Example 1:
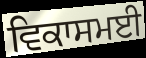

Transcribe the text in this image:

ਵਿਕਾਸਮਈ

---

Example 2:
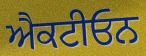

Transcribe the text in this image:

ਐਕਟੀਓਨ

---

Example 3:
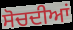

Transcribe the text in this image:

ਸੋਚਦੀਆਂ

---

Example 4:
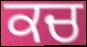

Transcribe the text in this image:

ਕਚ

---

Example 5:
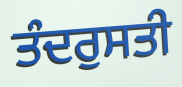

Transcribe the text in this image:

ਤੰਦਰੁਸਤੀ